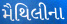
મૈથિલીના